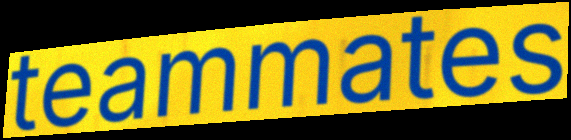
teammates